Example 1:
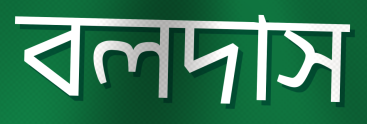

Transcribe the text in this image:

বলদাস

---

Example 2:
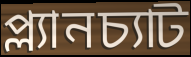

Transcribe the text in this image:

প্ল্যানচ্যাট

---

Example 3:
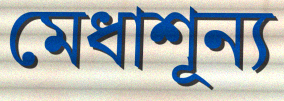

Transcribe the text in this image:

মেধাশূন্য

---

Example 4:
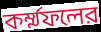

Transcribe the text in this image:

কর্ম্মফলের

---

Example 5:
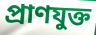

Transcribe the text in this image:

প্রাণযুক্ত